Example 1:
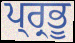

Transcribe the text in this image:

ਪ੍ਰ੍ਰਭੂ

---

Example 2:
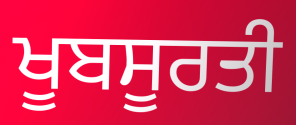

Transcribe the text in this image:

ਖੂਬਸੂਰਤੀ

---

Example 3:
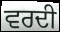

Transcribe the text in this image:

ਵਰਦੀ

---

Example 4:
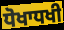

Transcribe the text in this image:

ਧੋਖਾਧਖੀ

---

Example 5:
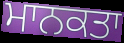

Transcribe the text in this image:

ਮਾਨਕਤਾ